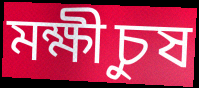
মক্ষীচুষ